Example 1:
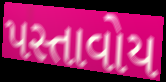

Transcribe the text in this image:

પસ્તાવોય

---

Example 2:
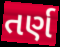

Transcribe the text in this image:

તર્ણ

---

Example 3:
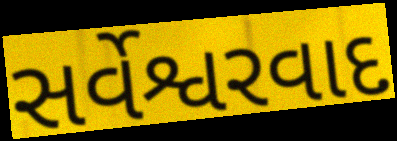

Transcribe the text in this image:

સર્વેશ્વરવાદ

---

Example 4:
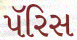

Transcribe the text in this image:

પૅરિસ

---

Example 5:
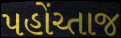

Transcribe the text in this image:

પહોંચ્તાજ